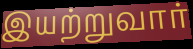
இயற்றுவார்